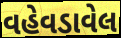
વહેવડાવેલ